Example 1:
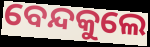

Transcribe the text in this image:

ବେନ୍ଦକୁଲେ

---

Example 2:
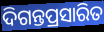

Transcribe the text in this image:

ଦିଗନ୍ତପ୍ରସାରିତ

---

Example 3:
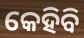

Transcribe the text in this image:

କେହିବି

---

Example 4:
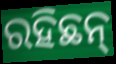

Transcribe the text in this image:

ରହିଛନ୍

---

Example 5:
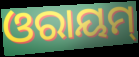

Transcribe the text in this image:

ଓରାୟମ୍